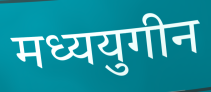
मध्ययुगीन